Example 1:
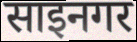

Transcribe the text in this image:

साइनगर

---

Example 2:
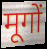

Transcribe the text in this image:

मूगों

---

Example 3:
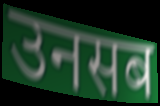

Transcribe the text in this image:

उनसब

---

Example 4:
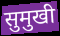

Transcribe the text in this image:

सुमुखी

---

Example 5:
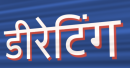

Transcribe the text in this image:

डीरेटिंग